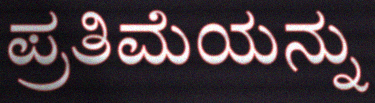
ಪ್ರತಿಮೆಯನ್ನು